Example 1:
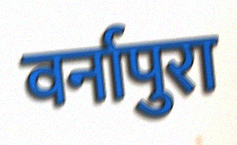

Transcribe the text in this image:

वर्नापुरा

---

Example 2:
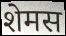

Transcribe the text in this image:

शेमस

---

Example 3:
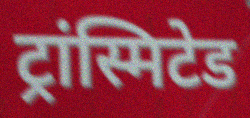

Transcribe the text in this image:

ट्रांस्मिटेड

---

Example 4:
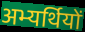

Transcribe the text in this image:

अभ्यर्थियों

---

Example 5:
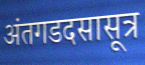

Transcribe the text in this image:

अंतगडदसासूत्र